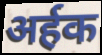
अर्हक